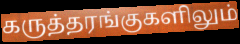
கருத்தரங்குகளிலும்